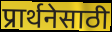
प्रार्थनेसाठी